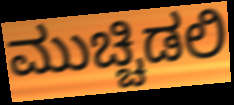
ಮುಚ್ಚಿಡಲಿ